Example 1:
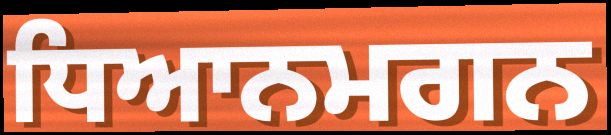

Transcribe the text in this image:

ਧਿਆਨਮਗਨ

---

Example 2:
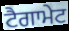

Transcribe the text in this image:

ਟੈਗਾਮੇਟ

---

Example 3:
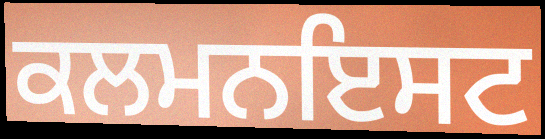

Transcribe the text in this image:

ਕਲਮਨਇਸਟ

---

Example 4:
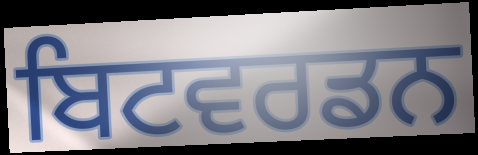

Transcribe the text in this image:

ਬਿਟਵਰਡਨ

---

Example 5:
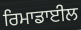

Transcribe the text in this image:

ਰਿਮਾਡਾਈਲ